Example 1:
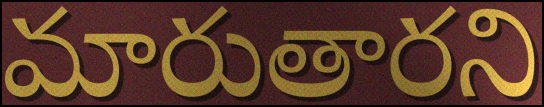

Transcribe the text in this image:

మారుతారని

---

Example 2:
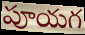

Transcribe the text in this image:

పూయగ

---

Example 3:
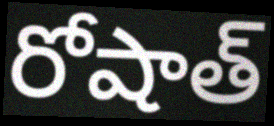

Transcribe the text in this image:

రోషాత్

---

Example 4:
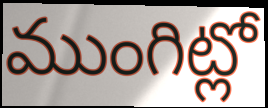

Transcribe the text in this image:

ముంగిట్లో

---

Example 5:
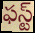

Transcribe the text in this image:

ఫస్ట్